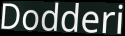
Dodderi